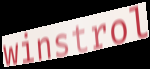
winstrol